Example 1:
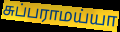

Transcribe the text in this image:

சுப்பராமய்யா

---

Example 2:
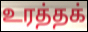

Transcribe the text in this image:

உரத்தக்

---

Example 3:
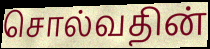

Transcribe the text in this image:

சொல்வதின்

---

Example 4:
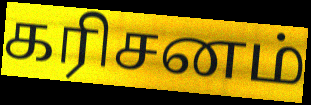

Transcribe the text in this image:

கரிசனம்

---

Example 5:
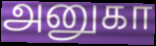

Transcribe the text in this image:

அனுகா